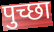
पुच्छा